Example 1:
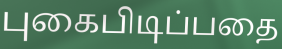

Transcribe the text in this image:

புகைபிடிப்பதை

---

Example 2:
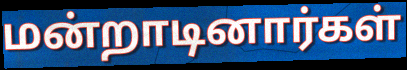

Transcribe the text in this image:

மன்றாடினார்கள்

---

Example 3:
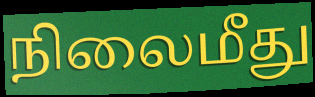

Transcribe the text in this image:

நிலைமீது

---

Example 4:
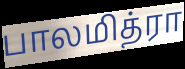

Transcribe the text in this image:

பாலமித்ரா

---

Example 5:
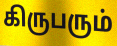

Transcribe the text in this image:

கிருபரும்